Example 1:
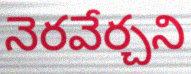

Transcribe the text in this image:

నెరవేర్చని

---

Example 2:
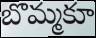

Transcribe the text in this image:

బొమ్మకూ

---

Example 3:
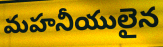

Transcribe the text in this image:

మహనీయులైన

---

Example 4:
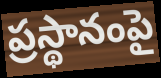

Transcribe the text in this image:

ప్రస్థానంపై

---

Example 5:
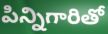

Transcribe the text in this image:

పిన్నిగారితో